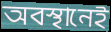
অবস্থানেই